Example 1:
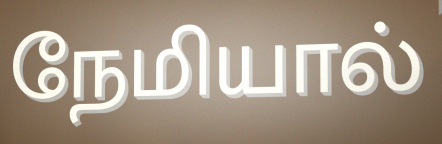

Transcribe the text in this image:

நேமியால்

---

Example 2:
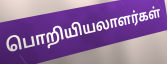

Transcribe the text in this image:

பொறியியலாளர்கள்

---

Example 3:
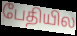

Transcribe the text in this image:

பேதியில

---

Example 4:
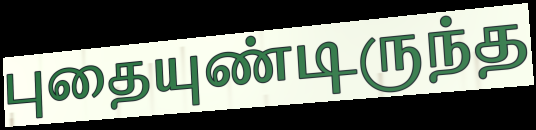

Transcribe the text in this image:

புதையுண்டிருந்த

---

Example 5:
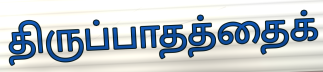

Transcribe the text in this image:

திருப்பாதத்தைக்